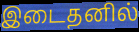
இடைதனில்